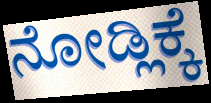
ನೋಡ್ಲಿಕ್ಕೆ